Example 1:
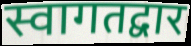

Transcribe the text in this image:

स्वागतद्वार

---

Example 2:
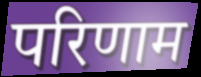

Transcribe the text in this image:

परिणाम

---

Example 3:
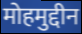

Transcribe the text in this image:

मोहमुद्दीन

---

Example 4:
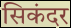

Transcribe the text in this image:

सिकंदर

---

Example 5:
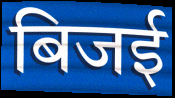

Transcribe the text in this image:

बिजई